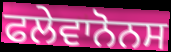
ਫਲੇਵਾਨੋਨਸ